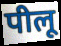
पीलू